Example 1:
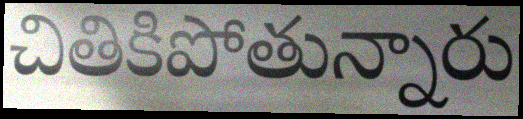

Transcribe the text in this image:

చితికిపోతున్నారు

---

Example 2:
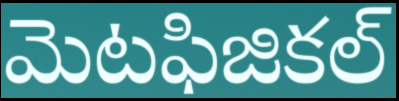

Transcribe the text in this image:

మెటఫిజికల్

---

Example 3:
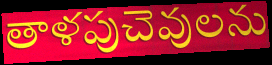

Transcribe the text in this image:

తాళపుచెవులను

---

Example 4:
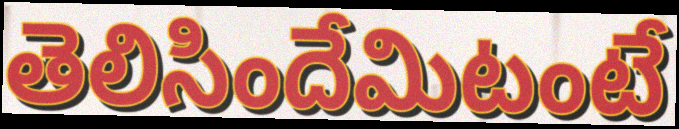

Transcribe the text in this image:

తెలిసిందేమిటంటే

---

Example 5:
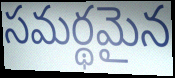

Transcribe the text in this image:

సమర్థమైన